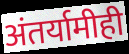
अंतर्यामीही